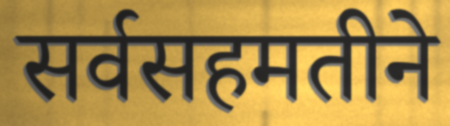
सर्वसहमतीने